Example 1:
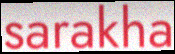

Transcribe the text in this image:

sarakha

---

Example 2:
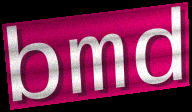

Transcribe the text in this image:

bmd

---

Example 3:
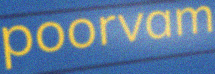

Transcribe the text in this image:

poorvam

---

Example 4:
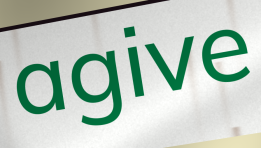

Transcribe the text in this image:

agive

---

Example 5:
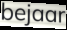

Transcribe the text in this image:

bejaar